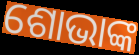
ଶୋଭାଙ୍କ